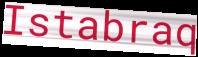
Istabraq